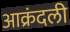
आक्रंदली